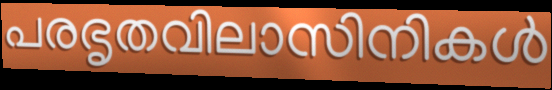
പരഭൃതവിലാസിനികൾ